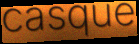
casque